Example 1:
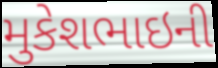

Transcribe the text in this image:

મુકેશભાઇની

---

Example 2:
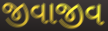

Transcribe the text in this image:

જીવાજીવ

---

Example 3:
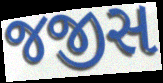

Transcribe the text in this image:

જજીસ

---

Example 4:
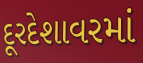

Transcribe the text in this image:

દૂરદેશાવરમાં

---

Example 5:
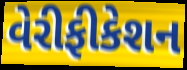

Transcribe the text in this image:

વેરીફીકેશન